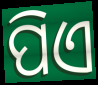
ପିଏ